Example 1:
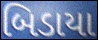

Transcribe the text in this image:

બિડાયા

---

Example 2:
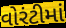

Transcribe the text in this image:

વોરંટીમાં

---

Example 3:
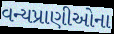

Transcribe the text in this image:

વન્યપ્રાણીઓના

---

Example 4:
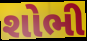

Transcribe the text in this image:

શોભી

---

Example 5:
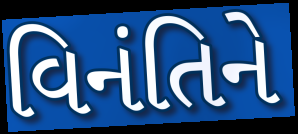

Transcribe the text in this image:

વિનંતિને